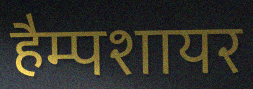
हैम्पशायर